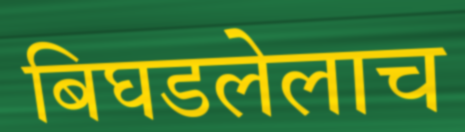
बिघडलेलाच